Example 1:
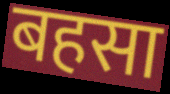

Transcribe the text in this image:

बहसा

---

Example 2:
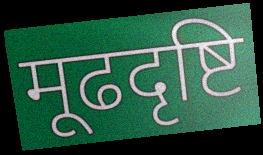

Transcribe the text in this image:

मूढदृष्टि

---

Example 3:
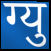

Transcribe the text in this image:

ग्यु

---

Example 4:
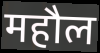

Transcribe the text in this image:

महौल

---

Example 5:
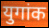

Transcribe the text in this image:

युगांक